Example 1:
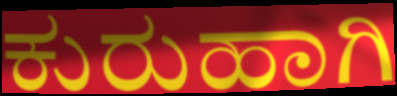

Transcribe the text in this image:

ಕುರುಹಾಗಿ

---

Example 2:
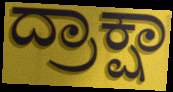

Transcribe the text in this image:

ದ್ರಾಕ್ಷಾ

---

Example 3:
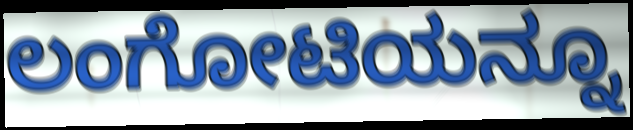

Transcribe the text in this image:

ಲಂಗೋಟಿಯನ್ನೂ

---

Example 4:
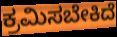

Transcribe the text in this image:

ಕ್ರಮಿಸಬೇಕಿದೆ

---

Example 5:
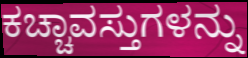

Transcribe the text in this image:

ಕಚ್ಚಾವಸ್ತುಗಳನ್ನು